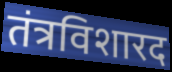
तंत्रविशारद